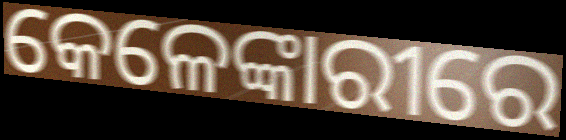
କେଳେଙ୍କାରୀରେ